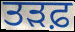
ਤੜਫ਼